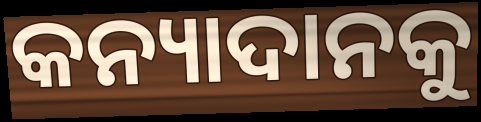
କନ୍ୟାଦାନକୁ